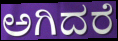
ಅಗಿದರೆ